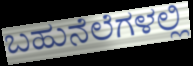
ಬಹುನೆಲೆಗಳಲ್ಲಿ